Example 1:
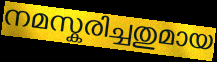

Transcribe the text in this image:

നമസ്കരിച്ചതുമായ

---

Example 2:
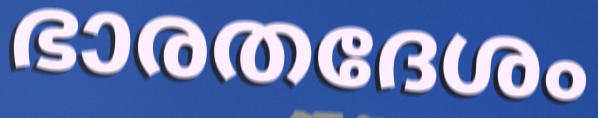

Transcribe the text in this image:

ഭാരതദേശം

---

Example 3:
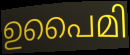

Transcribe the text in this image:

ഉപൈമി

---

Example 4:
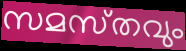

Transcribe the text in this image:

സമസ്‌തവും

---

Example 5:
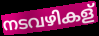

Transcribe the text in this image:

നടവഴികള്